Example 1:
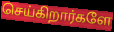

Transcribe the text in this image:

செய்கிறார்களே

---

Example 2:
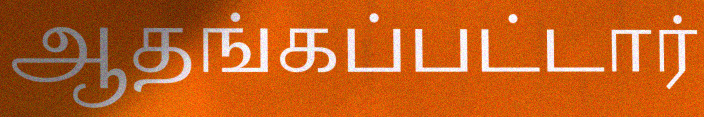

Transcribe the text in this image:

ஆதங்கப்பட்டார்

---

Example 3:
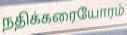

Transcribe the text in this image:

நதிக்கரையோரம்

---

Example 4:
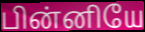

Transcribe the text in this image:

பின்னியே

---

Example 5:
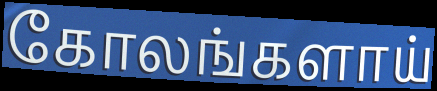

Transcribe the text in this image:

கோலங்களாய்